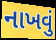
નાખવું